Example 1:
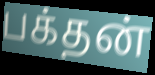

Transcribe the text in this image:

பக்தன்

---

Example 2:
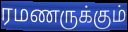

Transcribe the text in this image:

ரமணருக்கும்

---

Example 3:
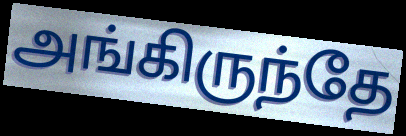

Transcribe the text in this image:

அங்கிருந்தே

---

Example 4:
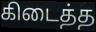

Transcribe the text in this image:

கிடைத்த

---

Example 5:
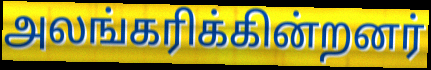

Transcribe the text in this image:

அலங்கரிக்கின்றனர்